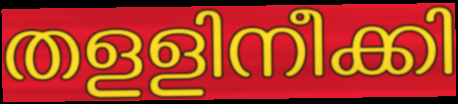
തളളിനീക്കി